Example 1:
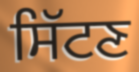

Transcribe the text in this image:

ਸਿੱਟਣ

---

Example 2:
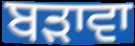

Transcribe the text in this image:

ਬੜਾਵਾ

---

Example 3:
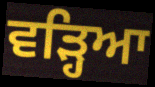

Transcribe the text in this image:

ਵੜ੍ਹਿਆ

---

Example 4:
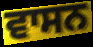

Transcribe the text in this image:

ਵਾਸਨ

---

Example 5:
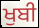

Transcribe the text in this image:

ਖੁਬੀ